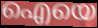
ഐയെ